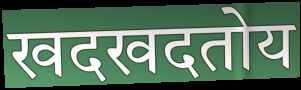
खदखदतोय